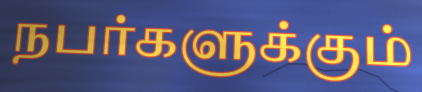
நபர்களுக்கும்